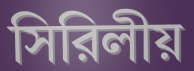
সিরিলীয়